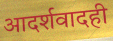
आदर्शवादही